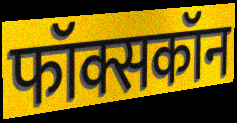
फॉक्सकॉन